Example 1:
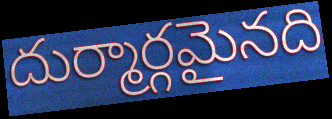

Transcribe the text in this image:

దుర్మార్గమైనది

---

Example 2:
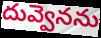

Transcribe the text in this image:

దువ్వెనను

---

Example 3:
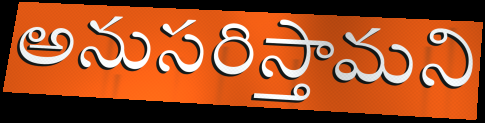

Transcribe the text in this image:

అనుసరిస్తామని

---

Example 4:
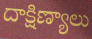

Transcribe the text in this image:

దాక్షిణ్యాలు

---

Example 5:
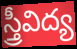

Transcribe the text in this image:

స్త్రీవిద్య